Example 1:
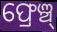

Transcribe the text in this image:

ଫ୍ରେଞ୍ଚ୍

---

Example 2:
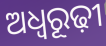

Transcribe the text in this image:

ଅଧ୍ଵରୂଢ଼ୀ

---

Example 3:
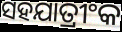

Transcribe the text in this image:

ସହଯାତ୍ରୀଂକ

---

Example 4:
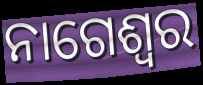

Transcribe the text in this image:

ନାଗେଶ୍ଵର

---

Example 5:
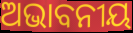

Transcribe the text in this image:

ଅଭାବନୀୟ